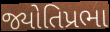
જ્યોતિપ્રભા